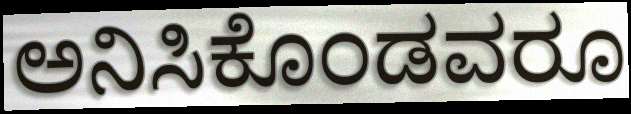
ಅನಿಸಿಕೊಂಡವರೂ